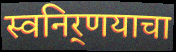
स्वनिर्णयाचा